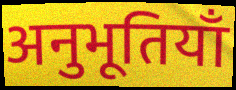
अनुभूतियाँ